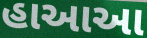
હાઆઆ